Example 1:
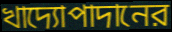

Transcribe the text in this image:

খাদ্যোপাদানের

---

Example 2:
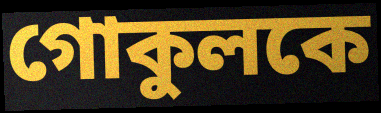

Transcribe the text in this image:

গোকুলকে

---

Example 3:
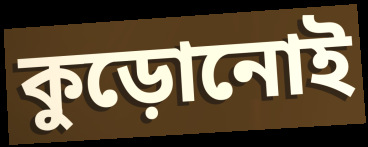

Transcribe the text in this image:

কুড়োনোই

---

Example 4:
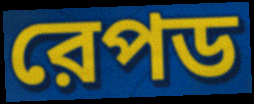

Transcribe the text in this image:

রেপড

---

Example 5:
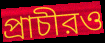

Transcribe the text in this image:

প্রাচীরও